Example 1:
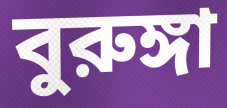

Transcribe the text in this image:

বুরুঙ্গা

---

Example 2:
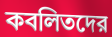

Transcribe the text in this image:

কবলিতদের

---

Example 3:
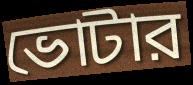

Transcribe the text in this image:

ভোটার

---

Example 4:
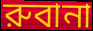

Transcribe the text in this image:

রুবানা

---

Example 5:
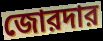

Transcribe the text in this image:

জোরদার